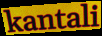
kantali